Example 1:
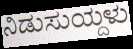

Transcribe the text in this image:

ನಿಡುಸುಯ್ದಳು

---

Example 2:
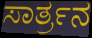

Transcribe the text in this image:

ಸಾರ್ತ್ರನ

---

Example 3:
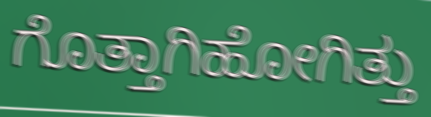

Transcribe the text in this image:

ಗೊತ್ತಾಗಿಹೋಗಿತ್ತು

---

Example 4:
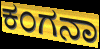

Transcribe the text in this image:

ಕಂಗನಾ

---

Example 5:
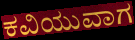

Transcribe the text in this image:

ಕವಿಯುವಾಗ